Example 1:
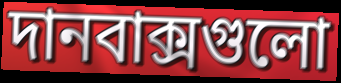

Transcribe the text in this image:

দানবাক্সগুলো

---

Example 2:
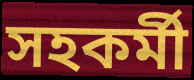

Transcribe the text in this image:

সহকর্মী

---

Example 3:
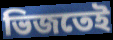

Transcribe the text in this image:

ভিজতেই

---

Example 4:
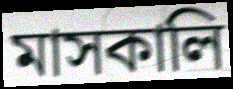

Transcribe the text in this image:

মাসকালি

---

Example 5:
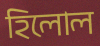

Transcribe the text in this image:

হিলোল